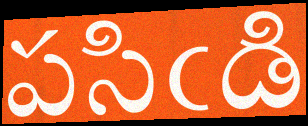
పసిఁడి